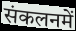
संकलनमें